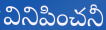
వినిపించనీ